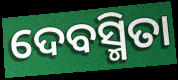
ଦେବସ୍ମିତା